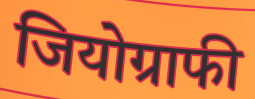
जियोग्राफी